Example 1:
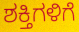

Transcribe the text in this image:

ಶಕ್ತಿಗಳಿಗೆ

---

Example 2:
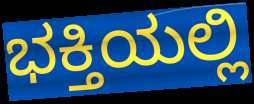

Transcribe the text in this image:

ಭಕ್ತಿಯಲ್ಲಿ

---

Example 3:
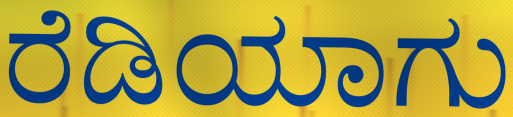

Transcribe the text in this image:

ರೆಡಿಯಾಗು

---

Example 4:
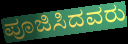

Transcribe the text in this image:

ಪೂಜಿಸಿದವರು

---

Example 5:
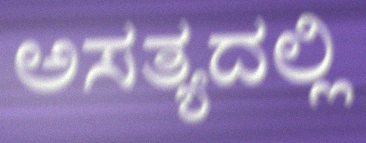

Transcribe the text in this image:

ಅಸತ್ಯದಲ್ಲಿ